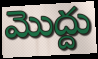
మొద్దు